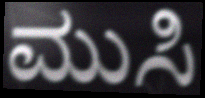
ಮುಸಿ